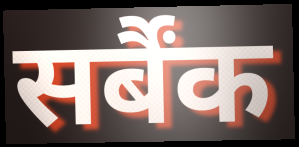
सर्बैंक